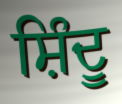
ਸ਼ਿੰਦੂ